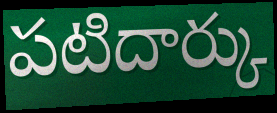
పటిదార్కు